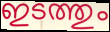
ഇടത്തും